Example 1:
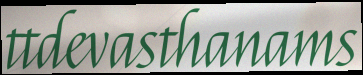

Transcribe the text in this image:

ttdevasthanams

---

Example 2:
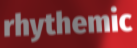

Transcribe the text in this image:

rhythemic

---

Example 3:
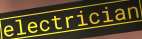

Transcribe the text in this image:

electrician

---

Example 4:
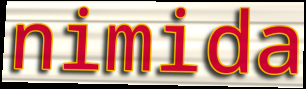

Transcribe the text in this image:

nimida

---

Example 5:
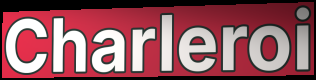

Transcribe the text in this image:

Charleroi